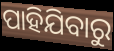
ପାହିଯିବାରୁ